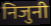
निजुनी